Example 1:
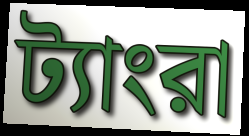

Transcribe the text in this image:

ট্যাংরা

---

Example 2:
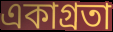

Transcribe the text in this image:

একাগ্রতা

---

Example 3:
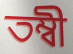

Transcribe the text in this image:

তম্বী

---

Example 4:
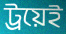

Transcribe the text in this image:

ট্রয়েই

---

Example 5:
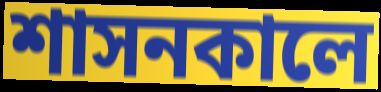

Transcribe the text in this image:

শাসনকালে